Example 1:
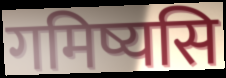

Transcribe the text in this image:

गमिष्यसि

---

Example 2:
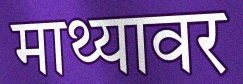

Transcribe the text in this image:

माथ्यावर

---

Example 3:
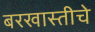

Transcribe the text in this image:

बरखास्तीचे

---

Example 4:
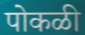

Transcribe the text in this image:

पोकळी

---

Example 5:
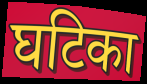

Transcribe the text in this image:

घटिका